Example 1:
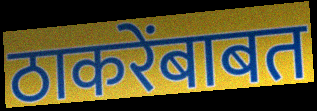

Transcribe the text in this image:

ठाकरेंबाबत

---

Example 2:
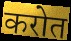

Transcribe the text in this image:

करोत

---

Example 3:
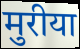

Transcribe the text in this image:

मुरीया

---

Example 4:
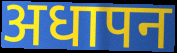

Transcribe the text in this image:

अधापन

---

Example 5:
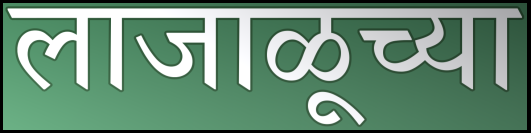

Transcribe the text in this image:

लाजाळूच्या